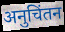
अनुचिंतन